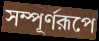
সম্পূর্ণরূপে